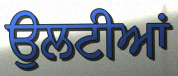
ਉਲਟੀਆਂ